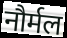
नौर्मल